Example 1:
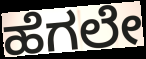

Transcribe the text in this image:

ಹೆಗಲೇ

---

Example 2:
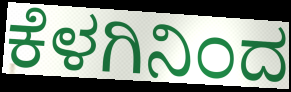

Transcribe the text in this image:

ಕೆಳಗಿನಿಂದ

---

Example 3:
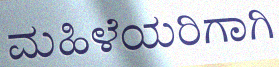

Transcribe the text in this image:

ಮಹಿಳೆಯರಿಗಾಗಿ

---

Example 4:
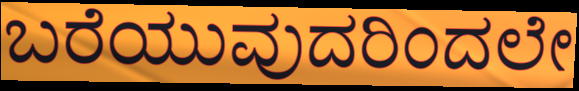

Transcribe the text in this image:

ಬರೆಯುವುದರಿಂದಲೇ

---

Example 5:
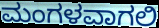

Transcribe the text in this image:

ಮಂಗಳವಾಗಲಿ